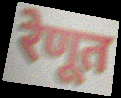
रेणूत